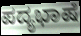
ಪದ್ಯಭಾಷೆ